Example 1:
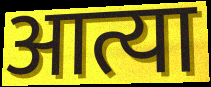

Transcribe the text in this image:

आत्या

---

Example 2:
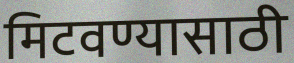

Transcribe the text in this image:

मिटवण्यासाठी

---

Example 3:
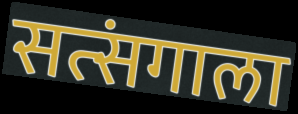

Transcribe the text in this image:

सत्संगाला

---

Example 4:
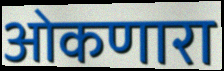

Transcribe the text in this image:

ओकणारा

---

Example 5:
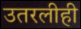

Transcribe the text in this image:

उतरलीही